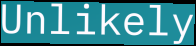
Unlikely